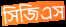
সিজিএস